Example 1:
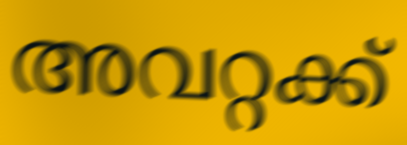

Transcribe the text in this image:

അവറ്റക്ക്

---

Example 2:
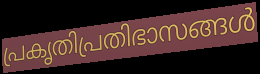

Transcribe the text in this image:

പ്രകൃതിപ്രതിഭാസങ്ങൾ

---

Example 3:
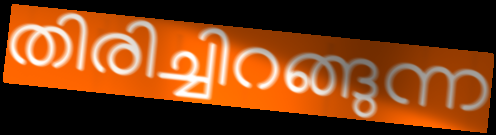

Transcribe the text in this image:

തിരിച്ചിറങ്ങുന്ന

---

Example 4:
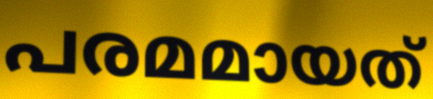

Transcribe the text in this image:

പരമമായത്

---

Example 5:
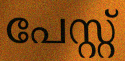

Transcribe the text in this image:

പേസ്റ്റ്